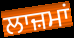
ਲਾਜ਼ਮਾਂ